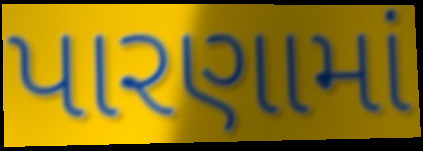
પારણામાં